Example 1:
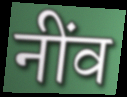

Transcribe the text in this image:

नींव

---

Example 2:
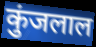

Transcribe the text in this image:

कुंजलाल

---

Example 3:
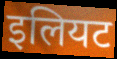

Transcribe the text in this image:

इलियट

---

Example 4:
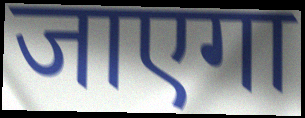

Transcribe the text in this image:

जाएगा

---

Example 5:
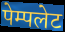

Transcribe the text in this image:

पेम्पलेट